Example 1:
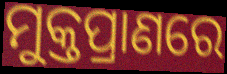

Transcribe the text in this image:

ମୁକ୍ତପ୍ରାଣରେ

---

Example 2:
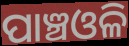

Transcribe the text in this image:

ପାଞ୍ଚଓଳି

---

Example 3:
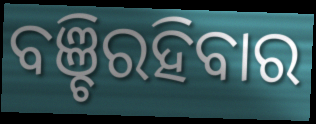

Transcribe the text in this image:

ବଞ୍ଚିରହିବାର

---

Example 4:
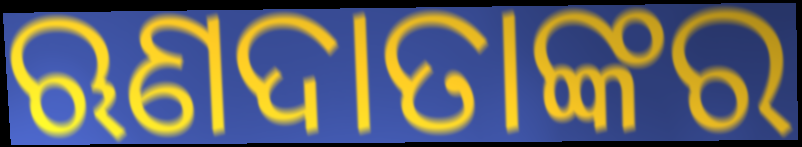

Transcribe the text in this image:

ଋଣଦାତାଙ୍କର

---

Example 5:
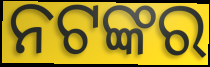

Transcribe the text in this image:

ନଟଙ୍କର